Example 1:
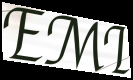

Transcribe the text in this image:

EMI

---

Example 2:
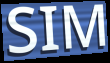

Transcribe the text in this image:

SIM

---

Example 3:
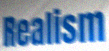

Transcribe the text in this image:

Realism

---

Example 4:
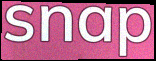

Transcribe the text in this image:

snap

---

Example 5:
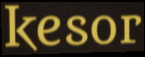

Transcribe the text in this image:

kesor